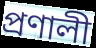
প্ৰণালী